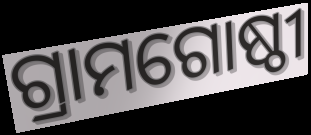
ଗ୍ରାମଗୋଷ୍ଠୀ